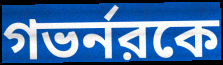
গভর্নরকে